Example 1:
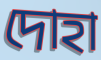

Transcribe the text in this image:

দোহা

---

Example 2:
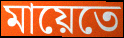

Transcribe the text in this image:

মায়েতে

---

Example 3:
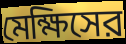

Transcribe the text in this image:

মেক্ষিসের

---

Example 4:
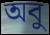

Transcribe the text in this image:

অবু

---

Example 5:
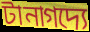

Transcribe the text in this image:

টানাগদ্যে